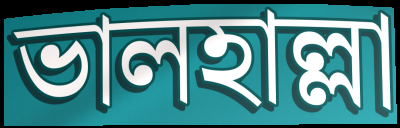
ভালহাল্লা